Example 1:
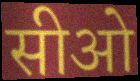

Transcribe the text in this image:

सीओ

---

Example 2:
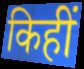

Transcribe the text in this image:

किहीं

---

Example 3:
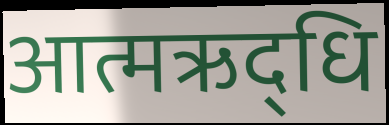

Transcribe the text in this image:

आत्मऋद्धि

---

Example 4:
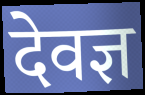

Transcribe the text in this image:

देवज्ञ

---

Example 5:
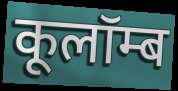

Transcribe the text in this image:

कूलॉम्ब